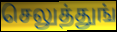
செலுத்துங்